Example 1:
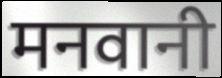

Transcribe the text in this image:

मनवानी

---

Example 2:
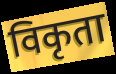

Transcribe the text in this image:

विकृता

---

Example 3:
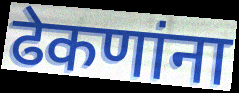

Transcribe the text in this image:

ढेकणांना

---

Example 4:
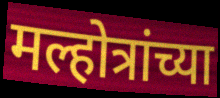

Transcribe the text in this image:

मल्होत्रांच्या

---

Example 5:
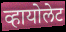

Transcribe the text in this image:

व्हायोलेट